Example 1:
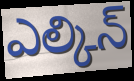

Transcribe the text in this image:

ఎల్కిన్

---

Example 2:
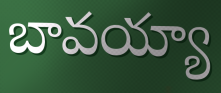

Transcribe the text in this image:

బావయ్యా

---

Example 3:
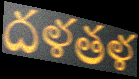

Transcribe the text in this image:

దళతళ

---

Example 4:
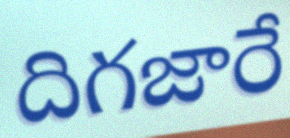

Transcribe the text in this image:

దిగజారే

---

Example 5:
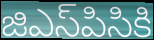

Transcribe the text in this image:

జిఎస్‌పిసికి